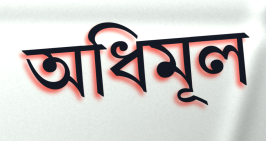
অধিমূল